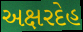
અક્ષરદેહ